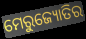
ମେରୁଜ୍ୟୋତିର